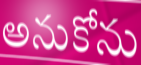
అనుకోను